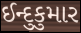
ઈન્દુકુમાર